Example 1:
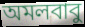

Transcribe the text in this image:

অমলবাবু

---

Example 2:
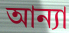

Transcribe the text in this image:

আন্যা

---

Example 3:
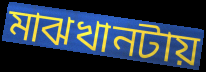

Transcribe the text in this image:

মাঝখানটায়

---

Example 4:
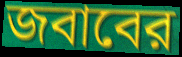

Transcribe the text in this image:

জবাবের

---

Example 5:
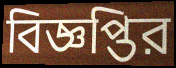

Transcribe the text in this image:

বিজ্ঞপ্তির